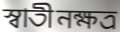
স্বাতীনক্ষত্র